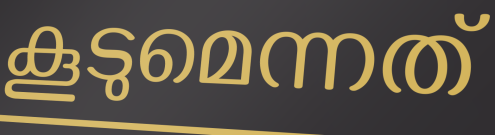
കൂടുമെന്നത്